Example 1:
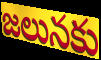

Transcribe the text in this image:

జలునకు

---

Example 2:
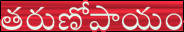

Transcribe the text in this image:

తరుణోపాయం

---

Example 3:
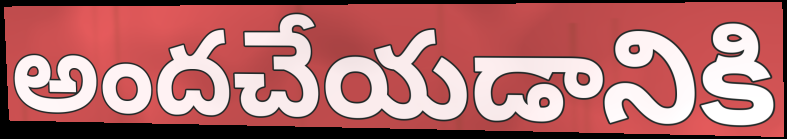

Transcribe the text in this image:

అందచేయడానికి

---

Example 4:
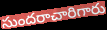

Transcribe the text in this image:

సుందరాచారిగారు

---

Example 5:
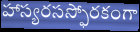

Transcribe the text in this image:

హాస్యరసస్ఫోరకంగా